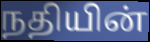
நதியின்